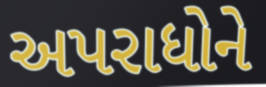
અપરાધોને